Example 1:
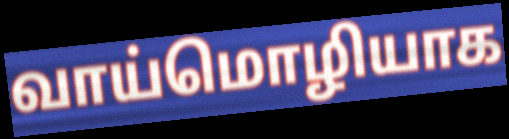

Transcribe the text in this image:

வாய்மொழியாக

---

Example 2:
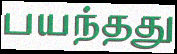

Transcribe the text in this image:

பயந்தது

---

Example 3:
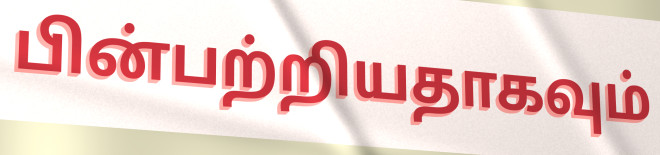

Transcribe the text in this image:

பின்பற்றியதாகவும்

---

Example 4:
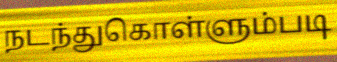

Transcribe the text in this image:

நடந்துகொள்ளும்படி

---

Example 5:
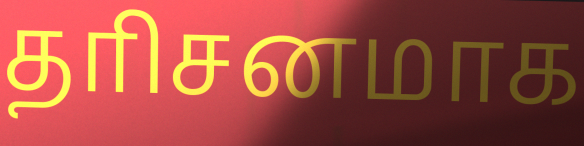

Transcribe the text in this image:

தரிசனமாக